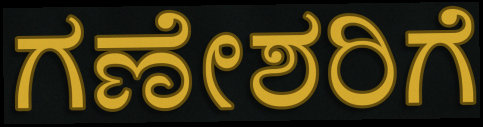
ಗಣೇಶರಿಗೆ